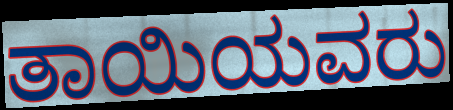
ತಾಯಿಯವರು